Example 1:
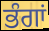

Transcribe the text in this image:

ਭੰਗਾਂ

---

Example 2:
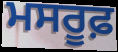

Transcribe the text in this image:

ਮਸਰੂਫ਼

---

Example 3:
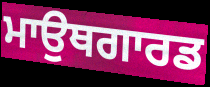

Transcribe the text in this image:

ਮਾਉਥਗਾਰਡ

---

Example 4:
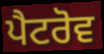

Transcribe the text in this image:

ਪੈਟਰੋਵ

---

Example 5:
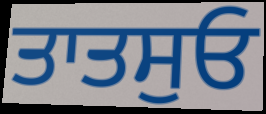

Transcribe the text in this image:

ਤਾਤਸੁਓ